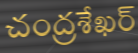
చంద్రశేఖర్